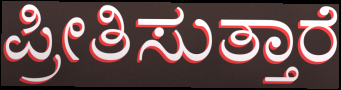
ಪ್ರೀತಿಸುತ್ತಾರೆ